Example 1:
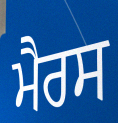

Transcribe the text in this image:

ਮੈਰਸ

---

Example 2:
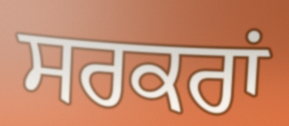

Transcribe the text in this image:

ਸਰਕਰਾਂ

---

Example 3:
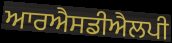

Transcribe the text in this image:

ਆਰਐਸਡੀਐਲਪੀ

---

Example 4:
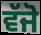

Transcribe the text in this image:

ਵੱਜੋ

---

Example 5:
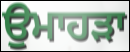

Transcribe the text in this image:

ਉਮਾਹੜਾ